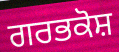
ਗਰਭਕੋਸ਼